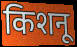
किशनू